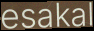
esakal